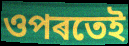
ওপৰতেই